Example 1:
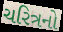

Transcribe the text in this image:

ચરિત્રનો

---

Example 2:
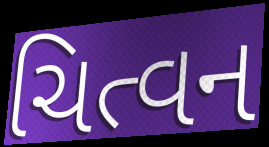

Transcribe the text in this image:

ચિત્વન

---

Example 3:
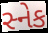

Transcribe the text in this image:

સ્નેક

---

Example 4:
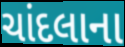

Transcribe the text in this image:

ચાંદલાના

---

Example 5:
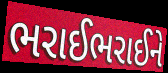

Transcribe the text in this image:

ભરાઈભરાઈને